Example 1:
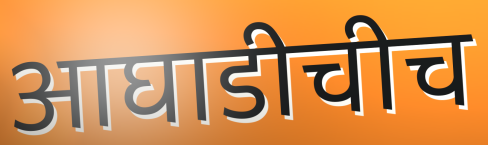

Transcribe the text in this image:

आघाडीचीच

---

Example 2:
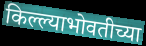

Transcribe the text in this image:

किल्ल्याभोवतीच्या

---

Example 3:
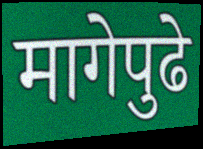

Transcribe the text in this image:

मागेपुढे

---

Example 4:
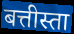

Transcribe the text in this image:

बत्तीस्ता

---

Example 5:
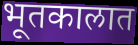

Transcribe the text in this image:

भूतकालात